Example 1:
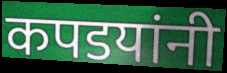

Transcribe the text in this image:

कपडयांनी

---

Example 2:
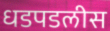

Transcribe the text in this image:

धडपडलीस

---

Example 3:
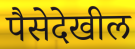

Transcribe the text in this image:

पैसेदेखील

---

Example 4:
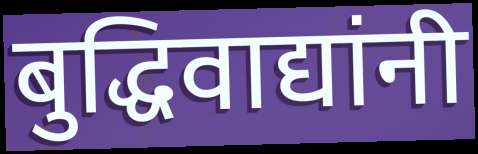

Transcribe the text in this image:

बुद्धिवाद्यांनी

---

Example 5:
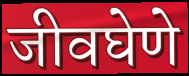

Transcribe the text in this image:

जीवघेणे